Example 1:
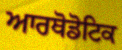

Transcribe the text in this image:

ਆਰਥੋਡੋਟਿਕ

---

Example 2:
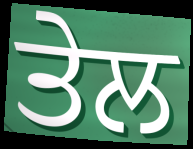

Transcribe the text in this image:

ਤੇਲ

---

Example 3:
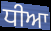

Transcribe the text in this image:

ਧੀਆ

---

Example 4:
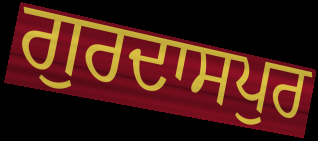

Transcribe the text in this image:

ਗੁਰਦਾਸਪੁਰ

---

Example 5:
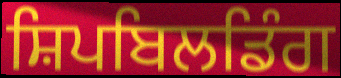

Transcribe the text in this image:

ਸ਼ਿਪਬਿਲਡਿੰਗ